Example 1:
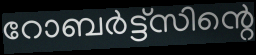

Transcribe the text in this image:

റോബർട്ട്സിന്റെ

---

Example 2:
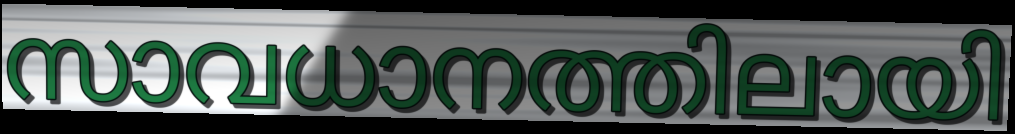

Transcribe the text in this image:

സാവധാനത്തിലായി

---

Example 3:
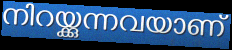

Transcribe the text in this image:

നിറയ്ക്കുന്നവയാണ്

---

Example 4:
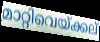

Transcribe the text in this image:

മാറ്റിവെയ്ക്കല്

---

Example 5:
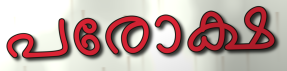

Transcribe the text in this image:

പരോക്ഷ